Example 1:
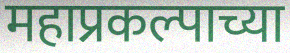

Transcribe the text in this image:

महाप्रकल्पाच्या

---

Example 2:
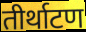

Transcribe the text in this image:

तीर्थाटण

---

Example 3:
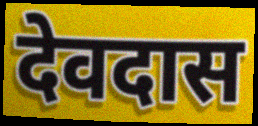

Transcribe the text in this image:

देवदास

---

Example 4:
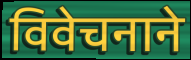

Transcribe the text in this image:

विवेचनाने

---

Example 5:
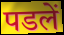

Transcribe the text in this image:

पडलें